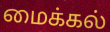
மைக்கல்